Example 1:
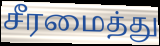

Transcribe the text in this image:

சீரமைத்து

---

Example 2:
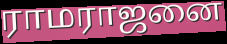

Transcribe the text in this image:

ராமராஜனை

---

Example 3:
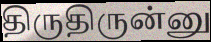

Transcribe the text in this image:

திருதிருன்னு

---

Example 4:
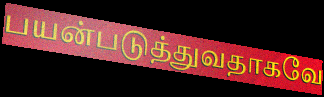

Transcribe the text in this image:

பயன்படுத்துவதாகவே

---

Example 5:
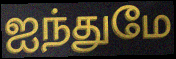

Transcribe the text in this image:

ஐந்துமே